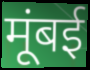
मूंबई